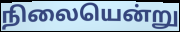
நிலையென்று